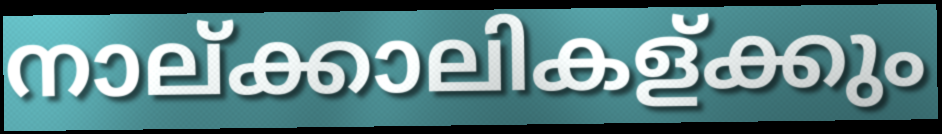
നാല്ക്കാലികള്ക്കും